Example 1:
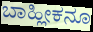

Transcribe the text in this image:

ಬಾಹ್ಲೀಕನೂ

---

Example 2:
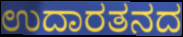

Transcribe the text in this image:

ಉದಾರತನದ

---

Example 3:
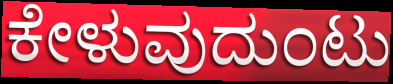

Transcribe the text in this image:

ಕೇಳುವುದುಂಟು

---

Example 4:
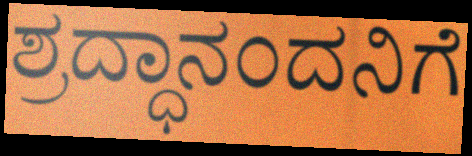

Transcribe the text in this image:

ಶ್ರದ್ಧಾನಂದನಿಗೆ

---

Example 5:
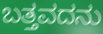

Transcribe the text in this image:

ಬತ್ತವದನು